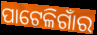
ପାଟେଳିଗାଁର